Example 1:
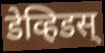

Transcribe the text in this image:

डेव्हिडस्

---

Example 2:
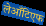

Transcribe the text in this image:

लेआँटिएफ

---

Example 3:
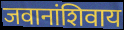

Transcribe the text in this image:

जवानांशिवाय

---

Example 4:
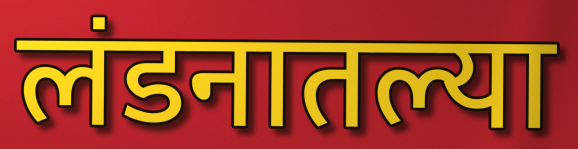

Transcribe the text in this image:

लंडनातल्या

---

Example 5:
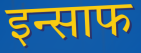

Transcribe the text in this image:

इन्साफ